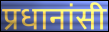
प्रधानांसी